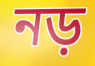
নড়